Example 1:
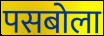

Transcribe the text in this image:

पसबोला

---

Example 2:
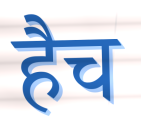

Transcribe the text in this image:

हैच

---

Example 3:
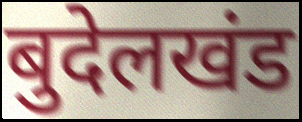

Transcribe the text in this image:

बुदेलखंड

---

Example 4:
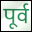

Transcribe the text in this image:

पूर्व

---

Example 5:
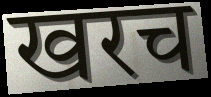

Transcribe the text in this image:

खरच